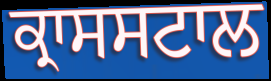
ਕ੍ਰਾਸਸਟਾਲ